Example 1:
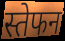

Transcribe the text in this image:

स्तेफन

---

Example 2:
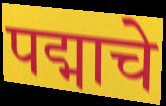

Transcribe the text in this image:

पद्माचे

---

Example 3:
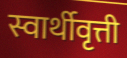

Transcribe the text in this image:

स्वार्थीवृत्ती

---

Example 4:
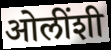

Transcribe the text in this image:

ओलींशी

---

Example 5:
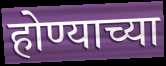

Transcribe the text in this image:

होण्याच्या